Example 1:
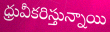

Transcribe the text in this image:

ధ్రువీకరిస్తున్నాయి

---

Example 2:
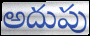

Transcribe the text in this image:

అదుపు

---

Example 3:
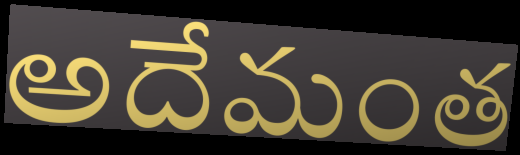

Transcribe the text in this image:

అదేమంత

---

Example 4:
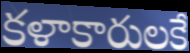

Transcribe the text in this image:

కళాకారులకే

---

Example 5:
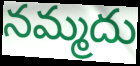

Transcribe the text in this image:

నమ్మదు